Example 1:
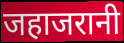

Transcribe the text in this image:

जहाजरानी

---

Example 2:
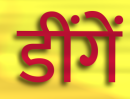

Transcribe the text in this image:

डींगें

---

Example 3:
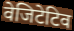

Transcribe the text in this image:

वेजिटेटिव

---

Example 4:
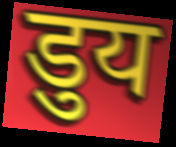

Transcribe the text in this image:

डुय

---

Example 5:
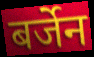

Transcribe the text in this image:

बर्जेन